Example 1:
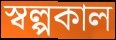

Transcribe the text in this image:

স্বল্পকাল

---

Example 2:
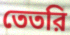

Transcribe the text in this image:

তেতরি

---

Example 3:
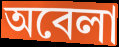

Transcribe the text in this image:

অবেলা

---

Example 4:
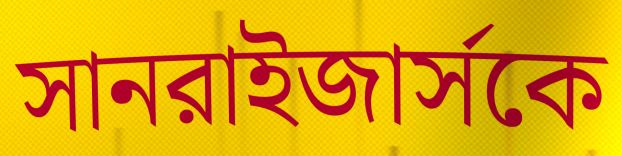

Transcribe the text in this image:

সানরাইজার্সকে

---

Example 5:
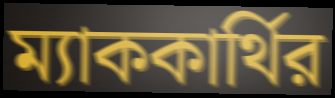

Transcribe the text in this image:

ম্যাককার্থির